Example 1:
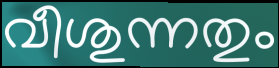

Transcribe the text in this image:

വീശുന്നതും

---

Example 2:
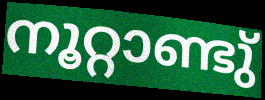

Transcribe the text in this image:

നൂറ്റാണ്ടു്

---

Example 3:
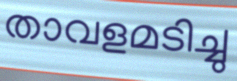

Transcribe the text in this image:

താവളമടിച്ചു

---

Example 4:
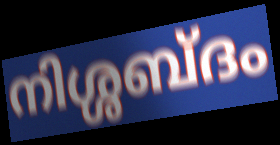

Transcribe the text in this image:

നിശ്ശബ്ദം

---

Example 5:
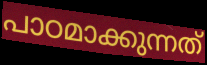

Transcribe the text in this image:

പാഠമാക്കുന്നത്